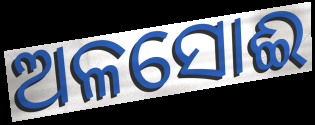
ଅଳସୋଈ